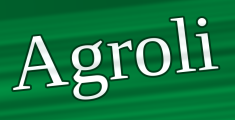
Agroli